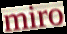
miro